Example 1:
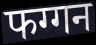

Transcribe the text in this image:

फग्गन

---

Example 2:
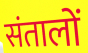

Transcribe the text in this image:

संतालों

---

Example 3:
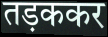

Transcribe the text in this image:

तड़ककर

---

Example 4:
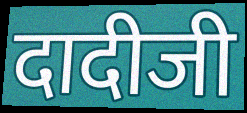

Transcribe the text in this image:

दादीजी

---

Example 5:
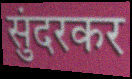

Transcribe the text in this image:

सुंदरकर